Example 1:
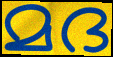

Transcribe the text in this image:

മദ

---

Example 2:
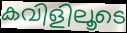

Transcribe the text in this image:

കവിളിലൂടെ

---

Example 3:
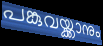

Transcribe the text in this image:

പങ്കുവയ്ക്കാനും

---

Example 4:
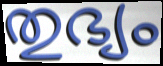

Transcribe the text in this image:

തുഭ്യം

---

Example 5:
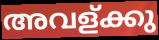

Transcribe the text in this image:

അവള്ക്കു